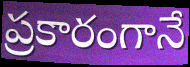
ప్రకారంగానే